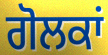
ਗੋਲਕਾਂ